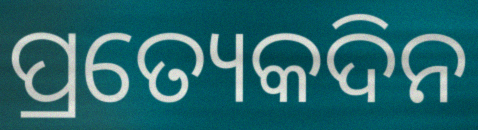
ପ୍ରତ୍ୟେକଦିନ